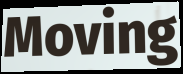
Moving